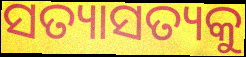
ସତ୍ୟାସତ୍ୟକୁ